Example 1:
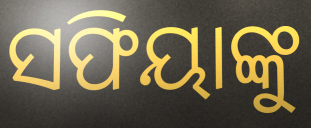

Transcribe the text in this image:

ସଫିୟାଙ୍କୁ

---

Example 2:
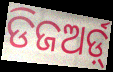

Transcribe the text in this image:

ଡିଜଅର୍ଡ଼୍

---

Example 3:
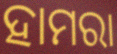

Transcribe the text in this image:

ହାମରା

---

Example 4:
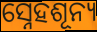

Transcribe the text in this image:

ସ୍ନେହଶୂନ୍ୟ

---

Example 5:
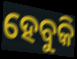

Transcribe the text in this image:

ହେବୁକି